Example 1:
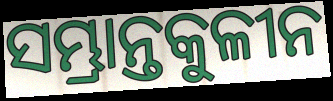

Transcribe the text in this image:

ସମ୍ଭ୍ରାନ୍ତକୁଳୀନ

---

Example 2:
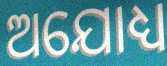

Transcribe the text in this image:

ଅଯୋଧ୍ୟ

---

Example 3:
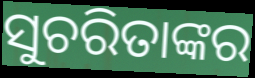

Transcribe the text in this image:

ସୁଚରିତାଙ୍କର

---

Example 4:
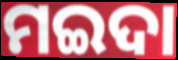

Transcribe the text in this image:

ମଇଦା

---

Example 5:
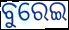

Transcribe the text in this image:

ବୁରେଇ